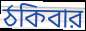
ঠকিবার